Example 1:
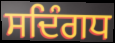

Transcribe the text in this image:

ਸਦਿੰਗਧ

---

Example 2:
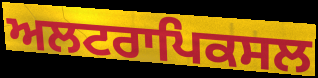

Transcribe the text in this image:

ਅਲਟਰਾਪਿਕਸਲ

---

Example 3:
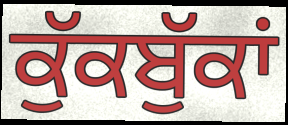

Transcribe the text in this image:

ਕੁੱਕਬੁੱਕਾਂ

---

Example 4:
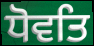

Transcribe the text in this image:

ਧੋਵਤਿ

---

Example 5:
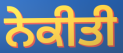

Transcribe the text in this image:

ਨੇਕੀਤੀ